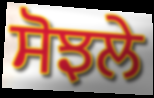
ਸੋਝਲੇ